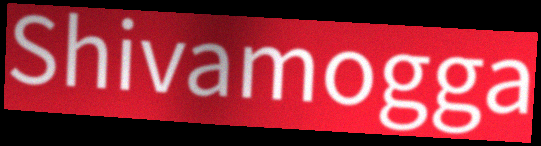
Shivamogga